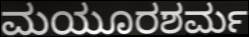
ಮಯೂರಶರ್ಮ